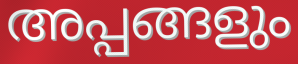
അപ്പങ്ങളും